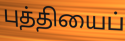
புத்தியைப்